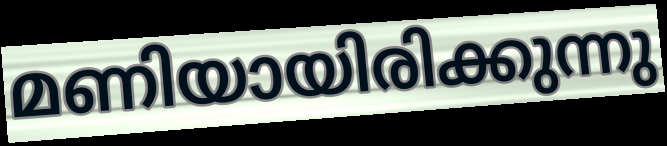
മണിയായിരിക്കുന്നു